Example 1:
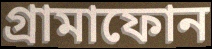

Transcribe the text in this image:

গ্রামাফোন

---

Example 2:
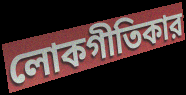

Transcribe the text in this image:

লোকগীতিকার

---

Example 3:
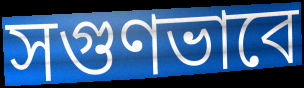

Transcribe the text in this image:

সগুণভাবে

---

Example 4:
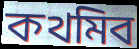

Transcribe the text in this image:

কথমিব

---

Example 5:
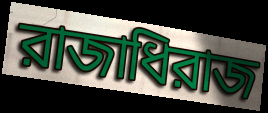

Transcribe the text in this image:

রাজাধিরাজ